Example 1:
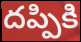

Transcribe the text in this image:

దప్పికి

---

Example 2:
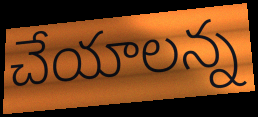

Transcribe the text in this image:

చేయాలన్న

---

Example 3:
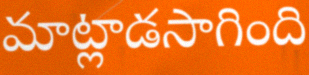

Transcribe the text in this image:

మాట్లాడసాగింది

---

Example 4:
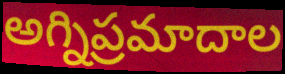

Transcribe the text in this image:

అగ్నిప్రమాదాల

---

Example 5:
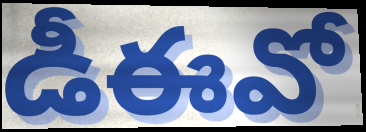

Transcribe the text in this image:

డీఈవో